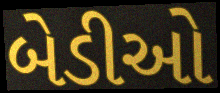
બેડીઓ